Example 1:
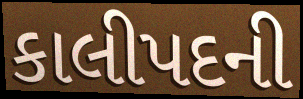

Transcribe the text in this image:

કાલીપદની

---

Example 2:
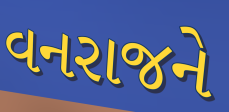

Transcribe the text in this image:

વનરાજને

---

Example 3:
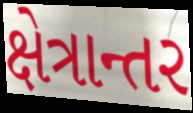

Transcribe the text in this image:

ક્ષેત્રાન્તર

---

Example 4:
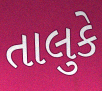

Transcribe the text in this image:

તાલુકે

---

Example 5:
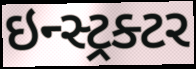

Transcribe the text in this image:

ઇન્સ્ટ્રક્ટર